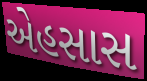
એહસાસ